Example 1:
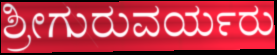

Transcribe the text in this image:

ಶ್ರೀಗುರುವರ್ಯರು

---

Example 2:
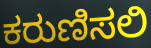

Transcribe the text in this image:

ಕರುಣಿಸಲಿ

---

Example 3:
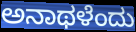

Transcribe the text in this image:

ಅನಾಥಳೆಂದು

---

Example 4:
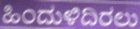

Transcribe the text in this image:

ಹಿಂದುಳಿದಿರಲು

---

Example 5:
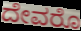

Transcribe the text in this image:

ದೇವರೊ